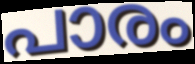
പാരം